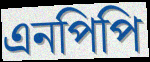
এনপিপি